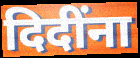
दिदींना